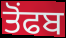
ਤੋਂਫਬ